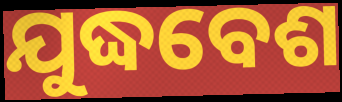
ଯୁଦ୍ଧବେଶ